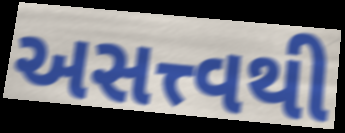
અસત્ત્વથી